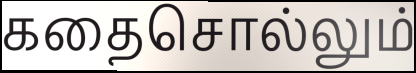
கதைசொல்லும்